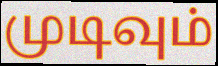
முடிவும்